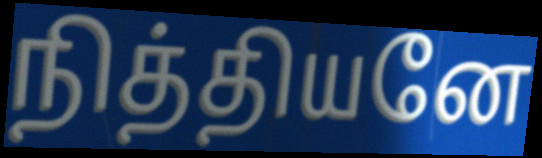
நித்தியனே